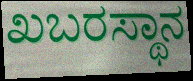
ಖಬರಸ್ಥಾನ